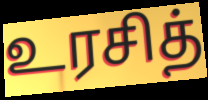
உரசித்